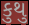
કુથુ